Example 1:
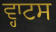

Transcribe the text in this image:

ਵ੍ਹਾਟਸ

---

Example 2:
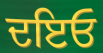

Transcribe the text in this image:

ਦਇਓ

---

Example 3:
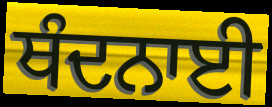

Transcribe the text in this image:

ਥੰਦਨਾਈ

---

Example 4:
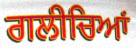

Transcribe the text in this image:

ਗਲੀਚਿਆਂ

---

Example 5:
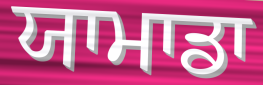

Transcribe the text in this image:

ਯਾਮਾਡਾ